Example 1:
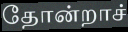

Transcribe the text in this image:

தோன்றாச்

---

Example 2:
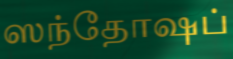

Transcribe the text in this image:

ஸந்தோஷப்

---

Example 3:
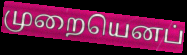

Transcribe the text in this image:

முறையெனப்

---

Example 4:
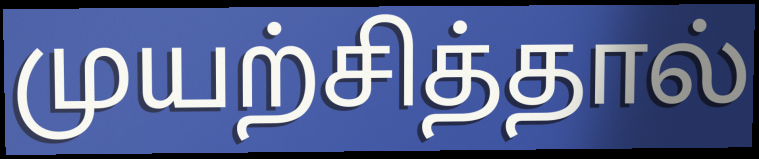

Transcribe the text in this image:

முயற்சித்தால்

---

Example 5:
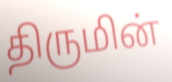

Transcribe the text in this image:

திருமின்